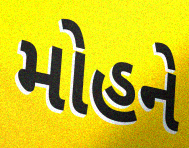
મોહને